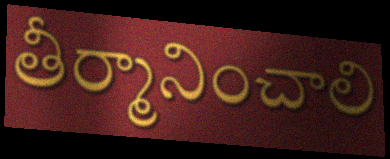
తీర్మానించాలి